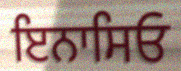
ਇਨਾਸਿਓ